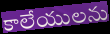
కాలేయులను